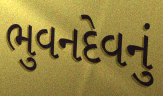
ભુવનદેવનું